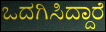
ಒದಗಿಸಿದ್ದಾರೆ